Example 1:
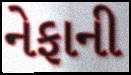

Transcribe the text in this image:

નેફાની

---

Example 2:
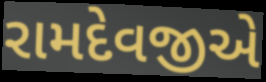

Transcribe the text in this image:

રામદેવજીએ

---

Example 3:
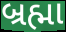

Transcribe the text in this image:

બ્રહ્મા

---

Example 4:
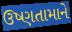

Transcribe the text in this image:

ઉષ્ણતામાને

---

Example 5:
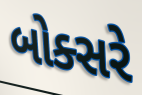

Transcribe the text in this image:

બોક્સરે